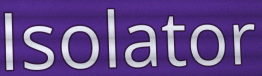
Isolator